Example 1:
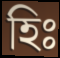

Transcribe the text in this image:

হিঃ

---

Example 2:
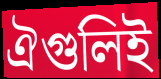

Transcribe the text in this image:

ঐগুলিই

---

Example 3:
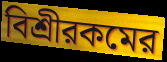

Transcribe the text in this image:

বিশ্রীরকমের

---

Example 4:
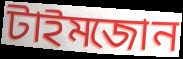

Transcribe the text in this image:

টাইমজোন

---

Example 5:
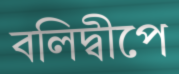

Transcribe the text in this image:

বলিদ্বীপে